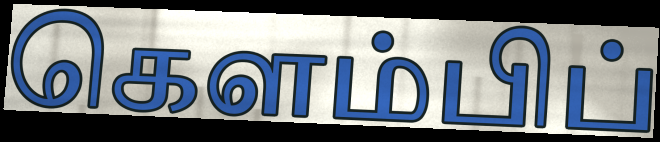
கௌம்பிப்